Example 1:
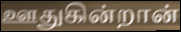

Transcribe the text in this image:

ஊதுகின்றான்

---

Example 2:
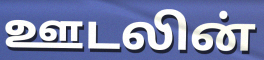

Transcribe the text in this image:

ஊடலின்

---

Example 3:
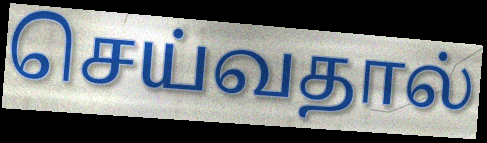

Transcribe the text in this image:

செய்வதால்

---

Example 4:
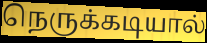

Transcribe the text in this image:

நெருக்கடியால்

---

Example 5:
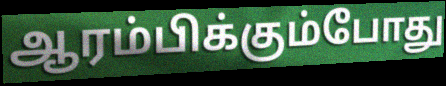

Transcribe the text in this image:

ஆரம்பிக்கும்போது